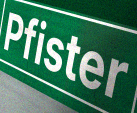
Pfister